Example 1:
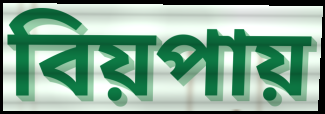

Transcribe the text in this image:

বিয়পায়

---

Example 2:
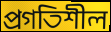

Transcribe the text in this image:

প্ৰগতিশীল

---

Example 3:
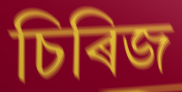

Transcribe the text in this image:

চিৰিজ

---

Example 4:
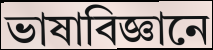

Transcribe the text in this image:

ভাষাবিজ্ঞানে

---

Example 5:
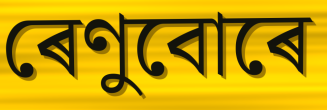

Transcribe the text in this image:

ৰেণুবোৰে